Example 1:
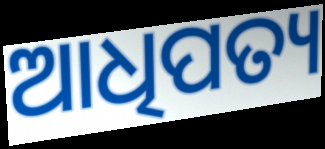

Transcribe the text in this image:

ଆଧିପତ୍ୟ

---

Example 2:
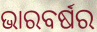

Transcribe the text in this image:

ଭାରବର୍ଷର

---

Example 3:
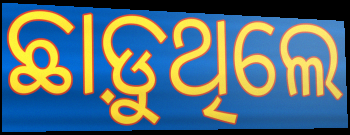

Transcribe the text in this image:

ଛାଡ଼ୁଥିଲେ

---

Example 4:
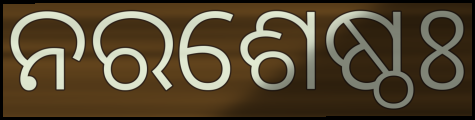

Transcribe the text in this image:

ନରଶେଷ୍ଠଃ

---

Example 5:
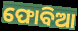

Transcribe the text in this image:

ଫୋବିଆ